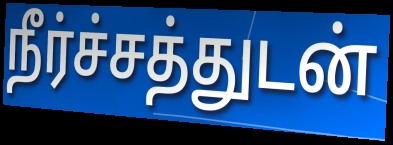
நீர்ச்சத்துடன்